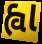
હ્વા